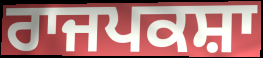
ਰਾਜਪਕਸ਼ਾ